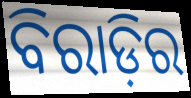
ବିରାଡ଼ିର